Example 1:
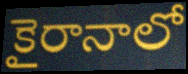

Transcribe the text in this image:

కైరానాలో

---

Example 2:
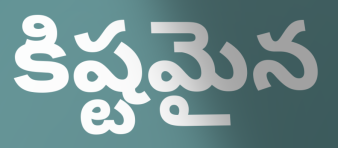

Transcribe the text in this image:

కిష్టమైన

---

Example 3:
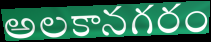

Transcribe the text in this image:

అలకానగరం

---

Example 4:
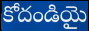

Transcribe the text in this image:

కోదండియై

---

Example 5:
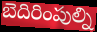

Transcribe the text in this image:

బెదిరింపుల్ని